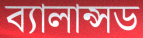
ব্যালান্সড